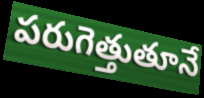
పరుగెత్తుతూనే